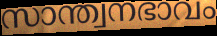
സാന്ത്വനഭാവം